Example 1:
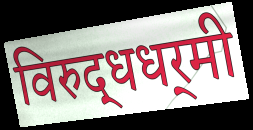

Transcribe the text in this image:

विरुद्धधर्मी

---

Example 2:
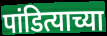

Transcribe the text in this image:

पांडित्याच्या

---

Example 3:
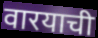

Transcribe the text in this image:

वारयाची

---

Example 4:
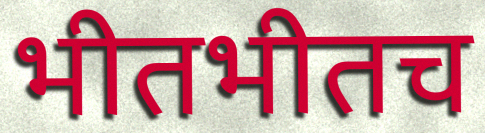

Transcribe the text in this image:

भीतभीतच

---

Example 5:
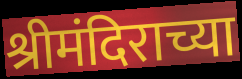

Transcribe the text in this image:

श्रीमंदिराच्या